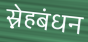
स्नेहबंधन